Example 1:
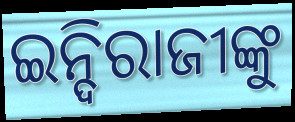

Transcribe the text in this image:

ଇନ୍ଦିରାଜୀଙ୍କୁ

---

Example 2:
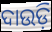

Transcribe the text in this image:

ଦାଉଡ଼ି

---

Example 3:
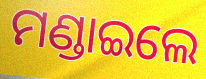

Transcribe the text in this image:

ମଣ୍ଡାଇଲେ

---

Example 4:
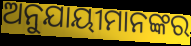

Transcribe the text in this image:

ଅନୁଯାୟୀମାନଙ୍କର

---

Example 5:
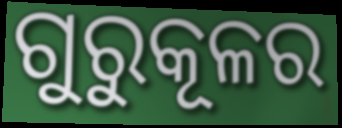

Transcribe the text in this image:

ଗୁରୁକୂଳର